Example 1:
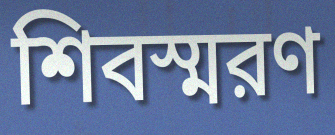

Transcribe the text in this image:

শিবস্মরণ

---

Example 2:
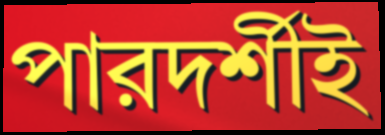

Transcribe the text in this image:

পারদর্শীই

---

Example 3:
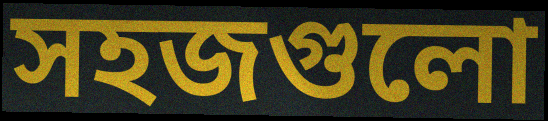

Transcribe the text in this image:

সহজগুলো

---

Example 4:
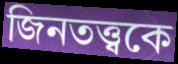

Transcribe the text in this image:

জিনতত্ত্বকে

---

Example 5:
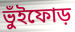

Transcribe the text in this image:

ভুঁইফোড়